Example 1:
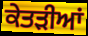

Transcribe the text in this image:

ਕੇਤੜੀਆਂ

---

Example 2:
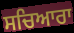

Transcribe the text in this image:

ਸਚਿਆਰਾ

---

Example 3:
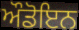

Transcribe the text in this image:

ਔਡੋਇਨ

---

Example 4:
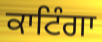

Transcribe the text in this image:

ਕਾਟਿੰਗਾ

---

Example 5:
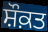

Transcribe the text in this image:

ਸ਼ੌਕ਼ਤ